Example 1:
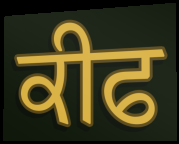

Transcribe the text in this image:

ਕੀਫ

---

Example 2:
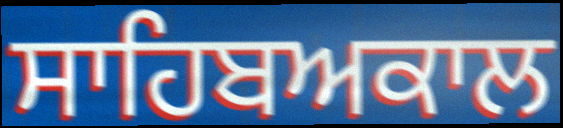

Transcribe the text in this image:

ਸਾਹਿਬਅਕਾਲ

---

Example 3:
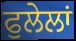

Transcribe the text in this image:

ਫੁਲੇਲਾਂ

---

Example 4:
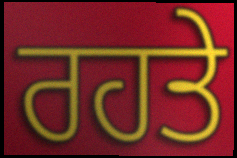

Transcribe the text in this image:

ਰਹਤੇ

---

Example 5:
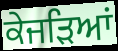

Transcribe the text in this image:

ਕੇਜੜਿਆਂ